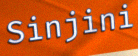
Sinjini